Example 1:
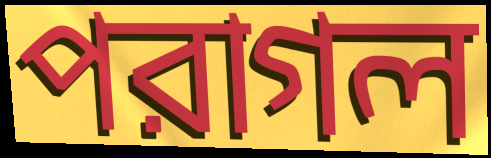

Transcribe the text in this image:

পরাগল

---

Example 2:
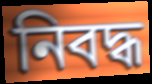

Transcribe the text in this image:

নিবদ্ধ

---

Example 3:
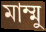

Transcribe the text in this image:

মাম্মু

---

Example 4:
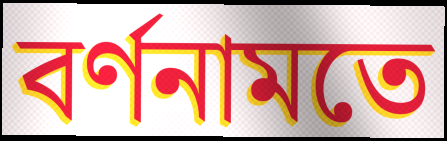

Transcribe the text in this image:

বর্ণনামতে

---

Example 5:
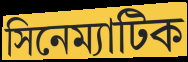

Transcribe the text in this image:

সিনেম্যাটিক